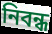
নিবন্ধ